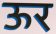
ऊर